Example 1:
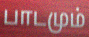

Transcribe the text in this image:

பாடமும்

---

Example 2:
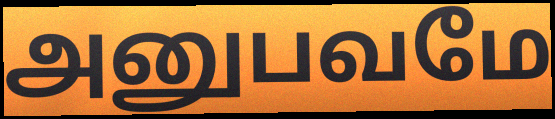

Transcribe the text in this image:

அனுபவமே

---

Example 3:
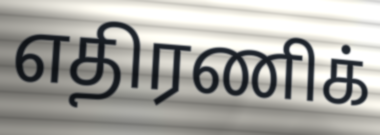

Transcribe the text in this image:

எதிரணிக்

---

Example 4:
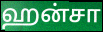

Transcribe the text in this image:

ஹன்சா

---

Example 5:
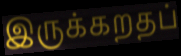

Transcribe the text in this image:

இருக்கறதப்